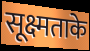
सूक्ष्मताके